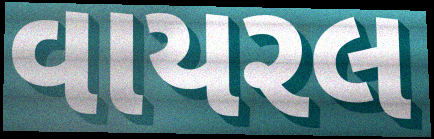
વાયરલ